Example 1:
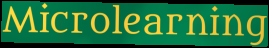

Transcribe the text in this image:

Microlearning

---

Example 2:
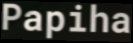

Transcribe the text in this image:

Papiha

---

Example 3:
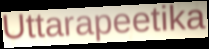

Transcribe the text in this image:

Uttarapeetika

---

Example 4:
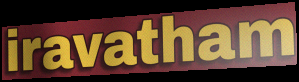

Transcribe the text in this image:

iravatham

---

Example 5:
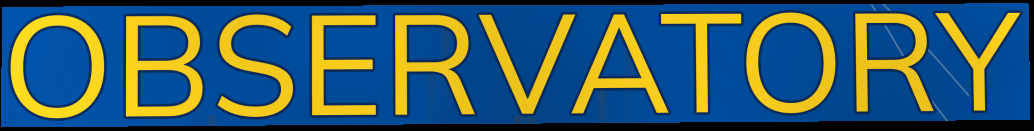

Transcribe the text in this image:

OBSERVATORY